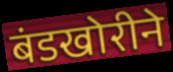
बंडखोरीने